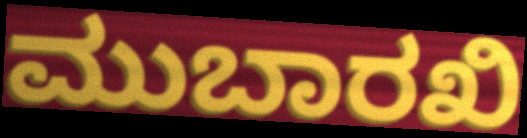
ಮುಬಾರಖಿ